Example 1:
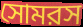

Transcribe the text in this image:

সোমরস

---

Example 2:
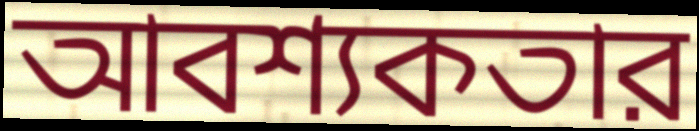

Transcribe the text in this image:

আবশ্যকতার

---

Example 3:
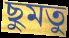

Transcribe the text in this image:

ছুমতু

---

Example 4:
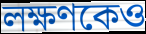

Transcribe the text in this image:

লক্ষণকেও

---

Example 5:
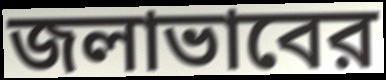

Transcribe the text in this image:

জলাভাবের